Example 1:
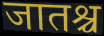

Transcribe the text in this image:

जातश्च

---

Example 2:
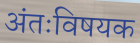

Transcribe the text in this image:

अंतःविषयक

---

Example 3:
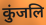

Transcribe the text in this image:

कुंजलि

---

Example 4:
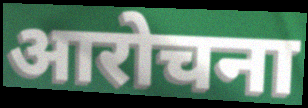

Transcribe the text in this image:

आरोचना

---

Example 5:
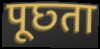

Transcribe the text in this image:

पूछ्ता